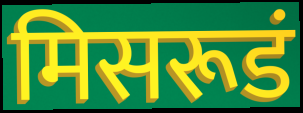
मिसरूडं